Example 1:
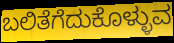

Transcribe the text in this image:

ಬಲಿತೆಗೆದುಕೊಳ್ಳುವ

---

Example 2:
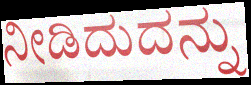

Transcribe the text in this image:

ನೀಡಿದುದನ್ನು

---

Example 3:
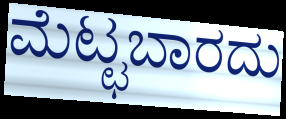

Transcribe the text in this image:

ಮೆಟ್ಟಬಾರದು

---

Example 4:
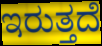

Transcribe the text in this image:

ಇರುತ್ತದೆ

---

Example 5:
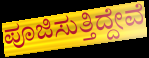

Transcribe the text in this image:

ಪೂಜಿಸುತ್ತಿದ್ದೇವೆ